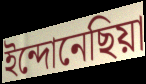
ইন্দোনেছিয়া